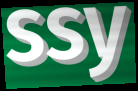
ssy